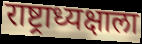
राष्ट्राध्यक्षाला